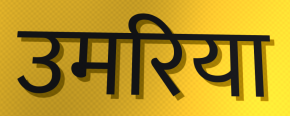
उमरिया